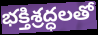
భక్తిశ్రద్ధలతో